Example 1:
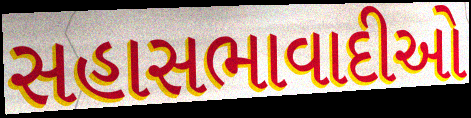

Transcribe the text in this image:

સહાસભાવાદીઓ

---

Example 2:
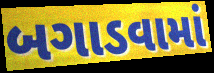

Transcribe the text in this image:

બગાડવામાં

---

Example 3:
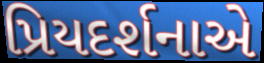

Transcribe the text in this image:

પ્રિયદર્શનાએ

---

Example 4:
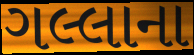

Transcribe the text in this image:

ગલ્લાના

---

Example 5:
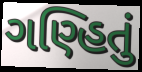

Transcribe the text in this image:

ગણ્હિતું